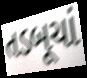
તડબૂચાં